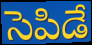
సెపిడే